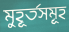
মুহূৰ্তসমূহ